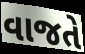
વાજતે